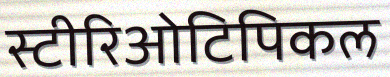
स्टीरिओटिपिकल